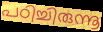
പഠിച്ചിരുന്നൂ